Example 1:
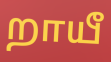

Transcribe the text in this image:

றாயீ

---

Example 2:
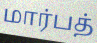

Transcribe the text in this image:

மார்பத்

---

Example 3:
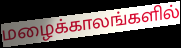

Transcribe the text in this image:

மழைக்காலங்களில்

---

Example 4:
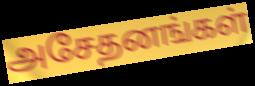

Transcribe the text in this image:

அசேதனங்கள்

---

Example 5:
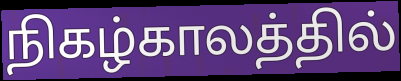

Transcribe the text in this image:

நிகழ்காலத்தில்